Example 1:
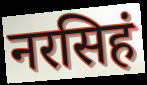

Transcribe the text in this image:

नरसिहं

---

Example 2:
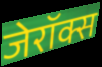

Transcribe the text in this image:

जेरॉक्स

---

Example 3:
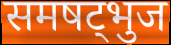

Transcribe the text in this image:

समषट्भुज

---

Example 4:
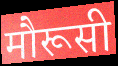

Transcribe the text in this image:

मौरूसी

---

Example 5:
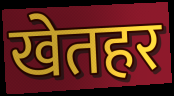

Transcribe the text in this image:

खेतहर